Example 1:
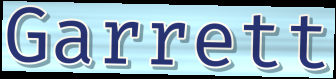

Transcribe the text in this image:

Garrett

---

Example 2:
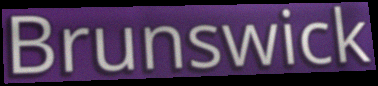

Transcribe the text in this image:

Brunswick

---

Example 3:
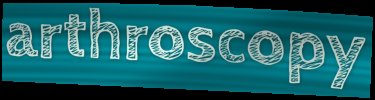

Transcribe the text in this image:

arthroscopy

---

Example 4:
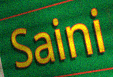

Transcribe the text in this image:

Saini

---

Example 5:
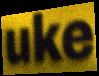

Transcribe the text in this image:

uke